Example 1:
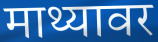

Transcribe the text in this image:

माथ्यावर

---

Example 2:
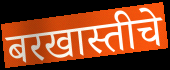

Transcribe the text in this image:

बरखास्तीचे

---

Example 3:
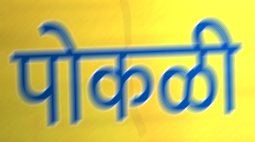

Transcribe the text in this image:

पोकळी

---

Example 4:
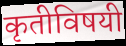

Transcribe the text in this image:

कृतीविषयी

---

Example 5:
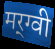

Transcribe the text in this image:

मर्ग्वी